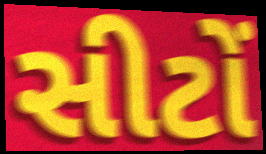
સીટોં